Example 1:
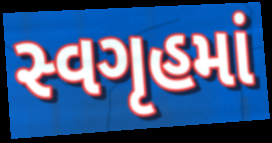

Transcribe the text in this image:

સ્વગૃહમાં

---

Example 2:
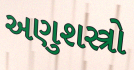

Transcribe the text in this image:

અણુશસ્ત્રો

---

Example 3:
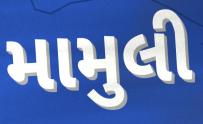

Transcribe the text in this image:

મામુલી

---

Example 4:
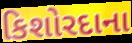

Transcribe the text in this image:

કિશોરદાના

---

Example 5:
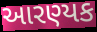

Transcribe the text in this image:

આરણ્યક